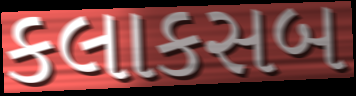
કલાકસબ